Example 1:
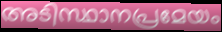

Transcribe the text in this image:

അടിസ്ഥാനപ്രമേയം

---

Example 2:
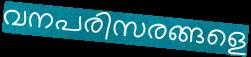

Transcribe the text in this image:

വനപരിസരങ്ങളെ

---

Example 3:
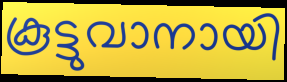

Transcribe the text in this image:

കൂട്ടുവാനായി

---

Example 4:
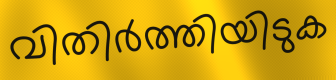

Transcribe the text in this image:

വിതിർത്തിയിടുക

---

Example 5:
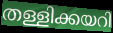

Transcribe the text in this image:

തള്ളിക്കയറി